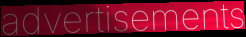
advertisements